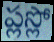
ప్లస్లో